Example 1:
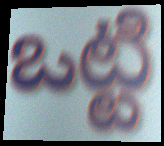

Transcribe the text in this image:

ఒట్టి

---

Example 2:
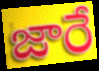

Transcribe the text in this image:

జారే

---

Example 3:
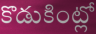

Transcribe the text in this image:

కొడుకింట్లో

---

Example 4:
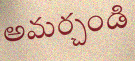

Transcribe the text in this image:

అమర్చండి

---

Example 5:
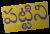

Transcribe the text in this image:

పట్టిని